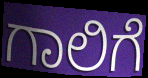
ಗಾಲಿಗೆ